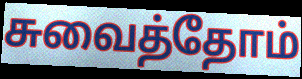
சுவைத்தோம்